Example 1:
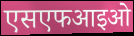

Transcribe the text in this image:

एसएफआइओ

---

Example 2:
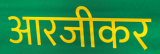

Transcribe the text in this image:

आरजीकर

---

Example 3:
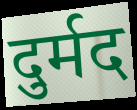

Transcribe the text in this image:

दुर्मद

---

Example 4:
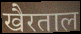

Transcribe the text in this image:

खैरताल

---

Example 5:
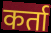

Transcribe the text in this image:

कर्ता